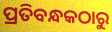
ପ୍ରତିବନ୍ଧକଠାରୁ